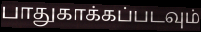
பாதுகாக்கப்படவும்